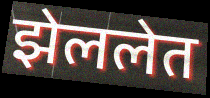
झेललेत